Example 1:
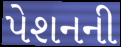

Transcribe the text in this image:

પેશનની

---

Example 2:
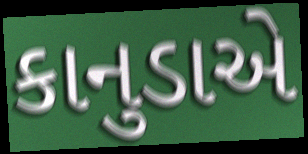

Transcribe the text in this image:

કાનુડાએ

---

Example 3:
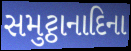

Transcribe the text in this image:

સમુટ્ઠાનાદિના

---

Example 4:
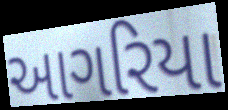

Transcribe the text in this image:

આગરિયા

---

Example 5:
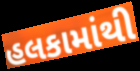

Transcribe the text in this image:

હલકામાંથી